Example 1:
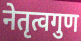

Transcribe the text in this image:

नेतृत्वगुण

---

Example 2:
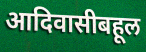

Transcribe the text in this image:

आदिवासीबहूल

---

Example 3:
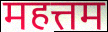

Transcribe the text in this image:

महत्तम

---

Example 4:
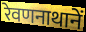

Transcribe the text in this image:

रेवणनाथानें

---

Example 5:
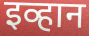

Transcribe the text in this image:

इव्हान